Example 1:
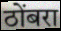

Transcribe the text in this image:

ठोंबरा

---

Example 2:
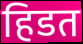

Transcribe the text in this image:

हिडत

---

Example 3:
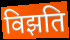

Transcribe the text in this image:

विझति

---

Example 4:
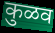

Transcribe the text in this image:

कुळव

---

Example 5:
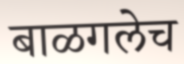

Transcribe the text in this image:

बाळगलेच